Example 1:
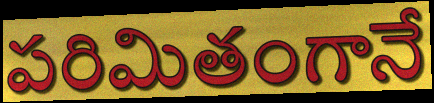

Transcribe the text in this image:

పరిమితంగానే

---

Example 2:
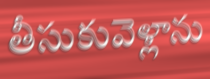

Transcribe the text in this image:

తీసుకువెళ్లాను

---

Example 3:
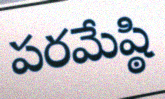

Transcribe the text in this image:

పరమేష్ఠి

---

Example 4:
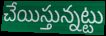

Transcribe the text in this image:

చేయిస్తున్నట్టు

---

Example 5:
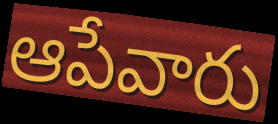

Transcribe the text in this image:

ఆపేవారు